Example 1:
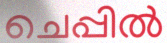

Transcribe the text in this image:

ചെപ്പിൽ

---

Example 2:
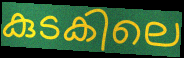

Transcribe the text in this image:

കുടകിലെ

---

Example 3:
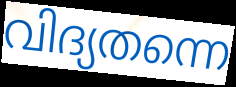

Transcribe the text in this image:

വിദ്യതന്നെ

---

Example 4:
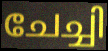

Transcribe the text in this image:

ചേച്ചി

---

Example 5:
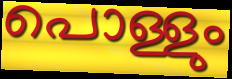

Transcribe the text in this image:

പൊള്ളും